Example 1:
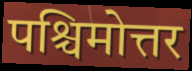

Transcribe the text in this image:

पश्चिमोत्तर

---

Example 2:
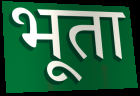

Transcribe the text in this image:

भूता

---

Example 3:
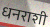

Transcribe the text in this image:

धनराशी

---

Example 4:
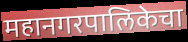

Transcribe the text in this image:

महानगरपालिकेचा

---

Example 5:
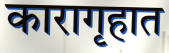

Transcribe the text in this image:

कारागृहात